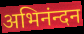
अभिनंन्दन